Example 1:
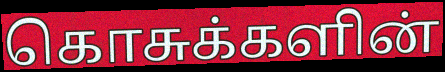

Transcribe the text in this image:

கொசுக்களின்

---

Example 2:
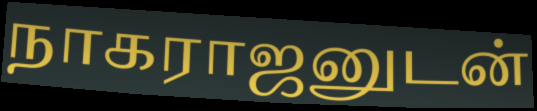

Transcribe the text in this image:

நாகராஜனுடன்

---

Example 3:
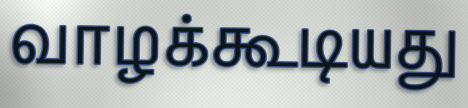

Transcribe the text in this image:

வாழக்கூடியது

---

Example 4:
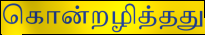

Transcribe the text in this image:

கொன்றழித்தது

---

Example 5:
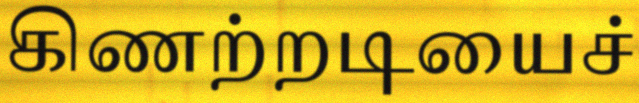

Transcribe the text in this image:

கிணற்றடியைச்